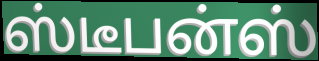
ஸ்டீபன்ஸ்